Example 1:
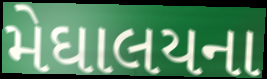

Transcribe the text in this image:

મેઘાલયના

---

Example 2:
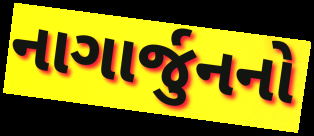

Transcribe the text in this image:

નાગાર્જુનનો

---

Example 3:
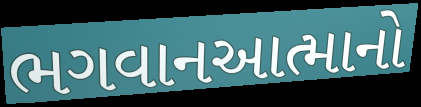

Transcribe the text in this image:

ભગવાનઆત્માનો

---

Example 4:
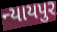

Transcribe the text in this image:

ન્યાયપુર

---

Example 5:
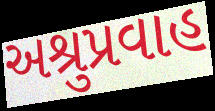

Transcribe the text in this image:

અશ્રુપ્રવાહ